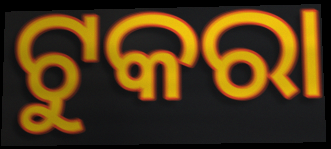
ଟୁକରା